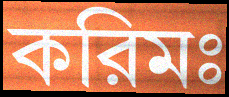
করিমঃ